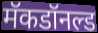
मॅकडॉनल्ड